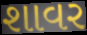
શાવર